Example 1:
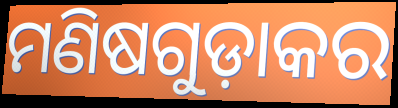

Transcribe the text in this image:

ମଣିଷଗୁଡ଼ାକର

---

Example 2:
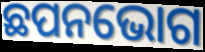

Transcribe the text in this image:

ଛପନଭୋଗ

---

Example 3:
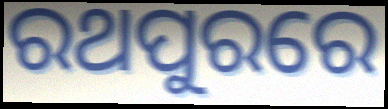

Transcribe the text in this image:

ରଥପୁରରେ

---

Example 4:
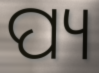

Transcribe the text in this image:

ପ୍ୟ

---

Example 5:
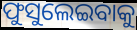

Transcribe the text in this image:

ଫୁସୁଲେଇବାକୁ